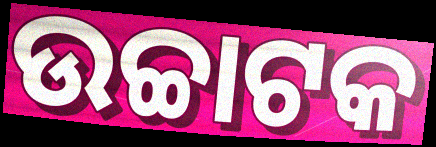
ଉଚ୍ଚାଟକ